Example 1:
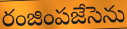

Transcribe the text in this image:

రంజింపజేసెను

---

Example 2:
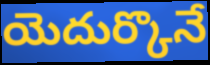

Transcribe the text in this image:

యెదుర్కొనే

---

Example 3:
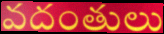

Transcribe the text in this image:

వదంతులు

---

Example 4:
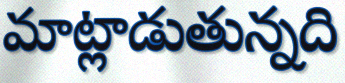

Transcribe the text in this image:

మాట్లాడుతున్నది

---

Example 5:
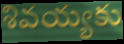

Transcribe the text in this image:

శివయ్యకు